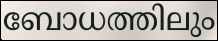
ബോധത്തിലും